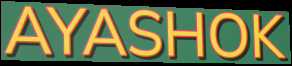
AYASHOK